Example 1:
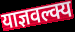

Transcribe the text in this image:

याज्ञवल्क्य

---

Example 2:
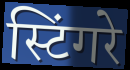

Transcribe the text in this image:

स्टिंगरे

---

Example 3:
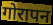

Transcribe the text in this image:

गोरापन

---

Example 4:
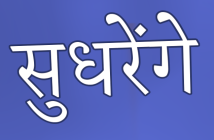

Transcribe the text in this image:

सुधरेंगे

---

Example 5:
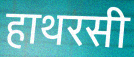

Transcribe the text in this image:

हाथरसी